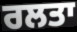
ਰਲਤਾ